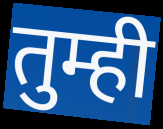
तुम्ही